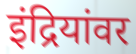
इंद्रियांवर